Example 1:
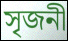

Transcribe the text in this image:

সৃজনী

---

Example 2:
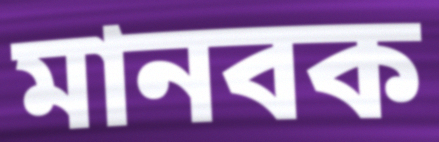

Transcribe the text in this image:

মানবক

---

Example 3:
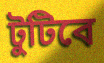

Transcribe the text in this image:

টুটিবে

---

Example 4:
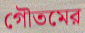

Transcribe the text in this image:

গৌতমের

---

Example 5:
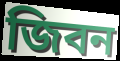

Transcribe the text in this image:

জিবন